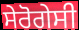
ਸੇਰੋਗੇਸੀ